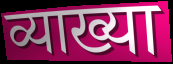
व्याख्या